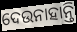
ଦେଉନାହାନ୍ତି